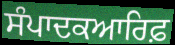
ਸੰਪਾਦਕਆਰਿਫ਼